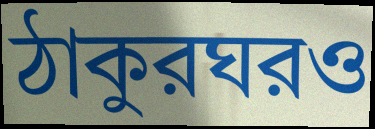
ঠাকুরঘরও